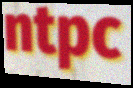
ntpc